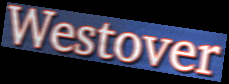
Westover